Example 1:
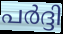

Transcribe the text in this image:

പർദ്ദി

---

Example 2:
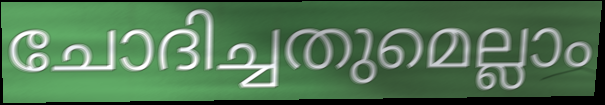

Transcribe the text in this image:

ചോദിച്ചതുമെല്ലാം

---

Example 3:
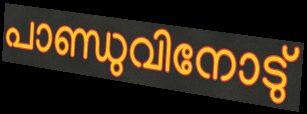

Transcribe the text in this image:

പാണ്ഡുവിനോടു്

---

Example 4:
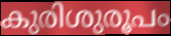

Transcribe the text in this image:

കുരിശുരൂപം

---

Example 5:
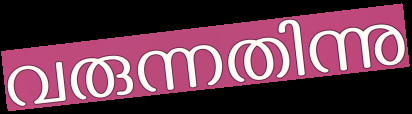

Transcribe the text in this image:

വരുന്നതിന്നു